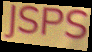
JSPS